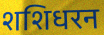
शशिधरन